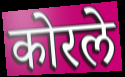
कोरले